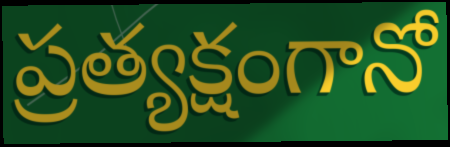
ప్రత్యక్షంగానో